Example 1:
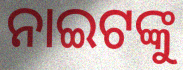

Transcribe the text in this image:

ନାଇଟଙ୍କୁ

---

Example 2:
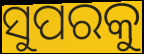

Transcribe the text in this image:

ସୁପରକୁ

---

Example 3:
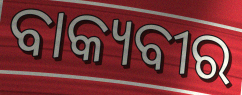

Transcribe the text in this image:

ବାକ୍ୟବୀର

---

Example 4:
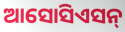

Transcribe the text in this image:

ଆସୋସିଏସନ୍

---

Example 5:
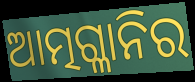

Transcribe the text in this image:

ଆତ୍ମଗ୍ଳାନିର